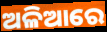
ଅଳିଆରେ